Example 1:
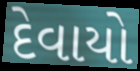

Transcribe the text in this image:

દેવાયો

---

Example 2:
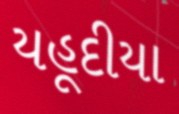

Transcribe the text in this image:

યહૂદીયા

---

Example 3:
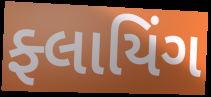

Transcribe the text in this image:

ફ્લાયિંગ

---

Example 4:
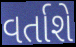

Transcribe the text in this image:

વર્તાશે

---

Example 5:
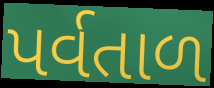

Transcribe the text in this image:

પર્વતાળ